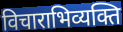
विचाराभिव्यक्ति